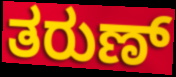
ತರುಣ್